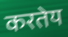
करतेय